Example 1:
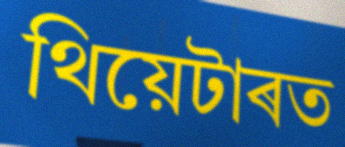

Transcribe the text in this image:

থিয়েটাৰত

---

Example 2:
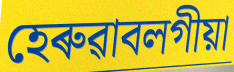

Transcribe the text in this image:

হেৰুৱাবলগীয়া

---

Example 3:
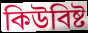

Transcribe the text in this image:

কিউবিষ্ট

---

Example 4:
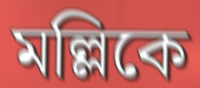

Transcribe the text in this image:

মল্লিকে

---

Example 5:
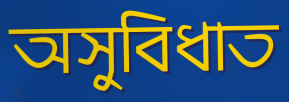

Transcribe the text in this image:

অসুবিধাত